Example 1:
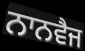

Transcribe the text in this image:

ਨਾਨਵੈਜ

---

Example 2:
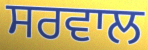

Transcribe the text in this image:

ਸਰਵਾਲ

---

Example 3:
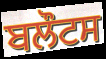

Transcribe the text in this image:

ਬਲੌਟਸ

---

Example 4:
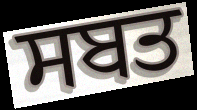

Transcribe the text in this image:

ਸਬਤ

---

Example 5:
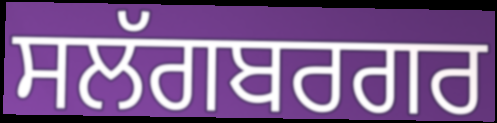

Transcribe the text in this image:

ਸਲੱਗਬਰਗਰ